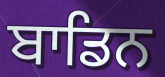
ਬਾਡਿਨ